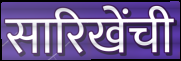
सारिखेंची